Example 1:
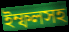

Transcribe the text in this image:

ইম্ফলসহ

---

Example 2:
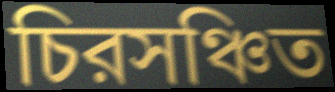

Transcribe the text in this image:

চিরসঞ্চিত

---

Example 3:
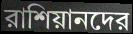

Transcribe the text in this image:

রাশিয়ানদের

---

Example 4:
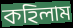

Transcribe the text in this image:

কহিলাম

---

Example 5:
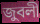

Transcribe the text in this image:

জুবলী